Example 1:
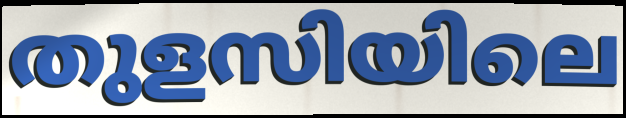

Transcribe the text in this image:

തുളസിയിലെ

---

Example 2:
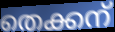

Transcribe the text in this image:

തെക്കന്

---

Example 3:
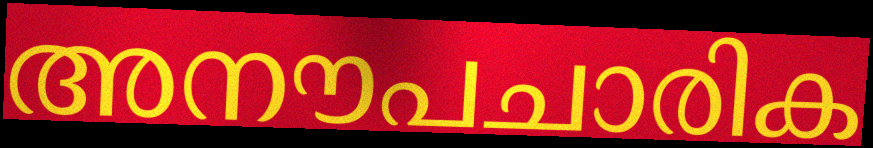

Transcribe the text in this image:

അനൗപചാരിക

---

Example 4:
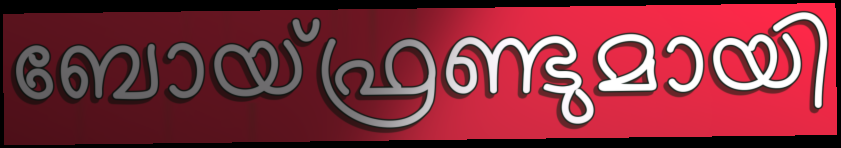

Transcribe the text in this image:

ബോയ്ഫ്രണ്ടുമായി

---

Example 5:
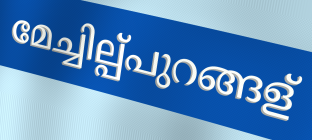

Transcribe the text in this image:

മേച്ചില്പ്പുറങ്ങള്